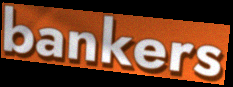
bankers